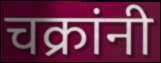
चक्रांनी